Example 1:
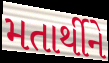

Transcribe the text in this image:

મતાર્થીને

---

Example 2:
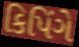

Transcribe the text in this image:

કિપિંગે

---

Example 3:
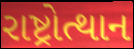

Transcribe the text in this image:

રાષ્ટ્રોત્થાન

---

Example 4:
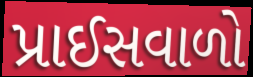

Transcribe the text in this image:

પ્રાઈસવાળો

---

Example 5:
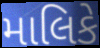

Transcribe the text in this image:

માલિકે